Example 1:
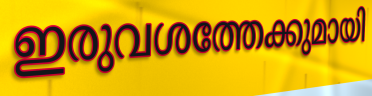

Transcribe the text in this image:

ഇരുവശത്തേക്കുമായി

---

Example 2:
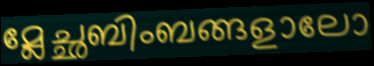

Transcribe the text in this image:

മ്ലേച്ഛബിംബങ്ങളാലോ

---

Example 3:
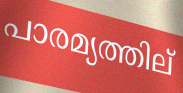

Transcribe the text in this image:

പാരമ്യത്തില്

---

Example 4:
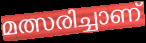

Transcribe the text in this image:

മത്സരിച്ചാണ്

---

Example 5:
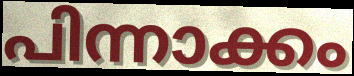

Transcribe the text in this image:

പിന്നാക്കം